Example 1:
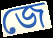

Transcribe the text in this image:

জে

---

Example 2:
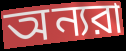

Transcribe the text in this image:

অন্যরা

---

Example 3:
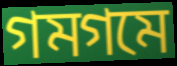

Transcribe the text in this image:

গমগমে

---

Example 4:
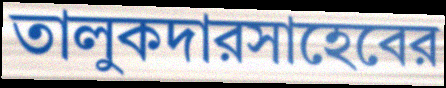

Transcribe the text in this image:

তালুকদারসাহেবের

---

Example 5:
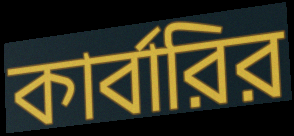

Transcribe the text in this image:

কার্বারির